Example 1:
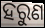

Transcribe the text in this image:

ହରୁଣ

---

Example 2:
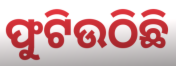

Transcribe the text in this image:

ଫୁଟିଉଠିଛି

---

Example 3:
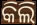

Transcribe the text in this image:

କିଲି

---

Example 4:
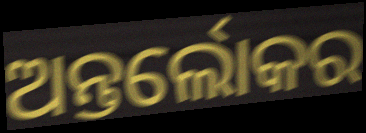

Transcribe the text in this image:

ଅନ୍ତର୍ଲୋକର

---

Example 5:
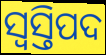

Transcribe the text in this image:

ସ୍ବସ୍ତିପଦ